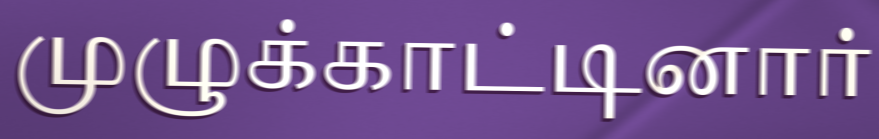
முழுக்காட்டினார்